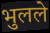
भुलले